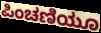
ಪಿಂಚಣಿಯೂ